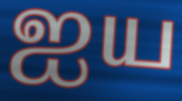
ஐய